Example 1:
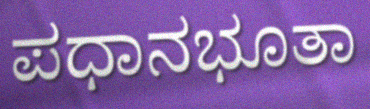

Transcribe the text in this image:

ಪಧಾನಭೂತಾ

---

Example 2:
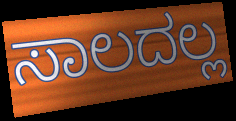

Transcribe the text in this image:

ಸಾಲದಲ್ಲ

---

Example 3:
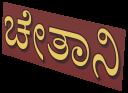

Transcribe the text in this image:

ಚೇತಾನಿ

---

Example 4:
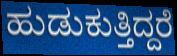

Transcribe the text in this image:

ಹುಡುಕುತ್ತಿದ್ದರೆ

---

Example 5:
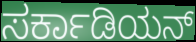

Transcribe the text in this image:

ಸರ್ಕಾಡಿಯನ್